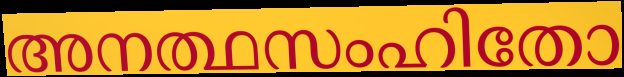
അനത്ഥസംഹിതോ